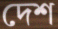
দেশ